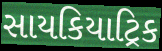
સાયકિયાટ્રિક